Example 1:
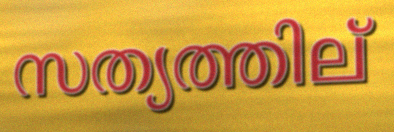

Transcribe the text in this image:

സത്യത്തില്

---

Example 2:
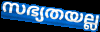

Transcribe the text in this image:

സഭ്യതയല്ല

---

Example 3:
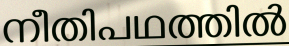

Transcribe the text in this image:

നീതിപഥത്തിൽ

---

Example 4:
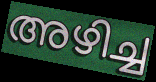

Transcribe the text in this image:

അഴിച്ച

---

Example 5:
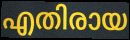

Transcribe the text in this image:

എതിരായ